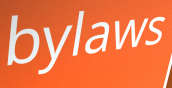
bylaws